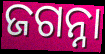
ଜଗନ୍ନା